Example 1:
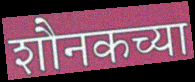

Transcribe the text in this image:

शौनकच्या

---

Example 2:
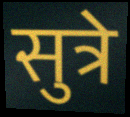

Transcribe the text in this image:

सुत्रे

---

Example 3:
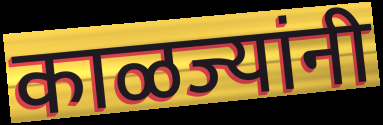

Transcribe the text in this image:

काळज्यांनी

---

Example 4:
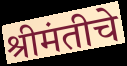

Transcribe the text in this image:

श्रीमंतीचे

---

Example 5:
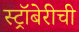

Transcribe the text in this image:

स्ट्रॉबेरीची